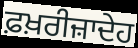
ਫ਼ਖ਼ਰੀਜ਼ਾਦੇਹ